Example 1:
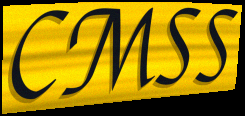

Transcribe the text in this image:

CMSS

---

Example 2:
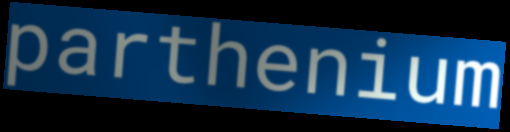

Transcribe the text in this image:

parthenium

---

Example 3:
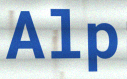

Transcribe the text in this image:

Alp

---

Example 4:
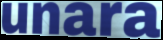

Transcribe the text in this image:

unara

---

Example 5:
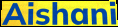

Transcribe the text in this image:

Aishani